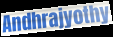
Andhrajyothy